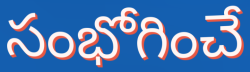
సంభోగించే